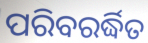
ପରିବରର୍ଦ୍ଧିତ